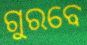
ଗୁରବେ